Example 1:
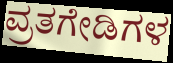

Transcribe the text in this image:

ವ್ರತಗೇಡಿಗಳ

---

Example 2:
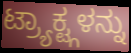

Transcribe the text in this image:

ಟ್ರ್ಯಾಕ್ಟ್ಗಳನ್ನು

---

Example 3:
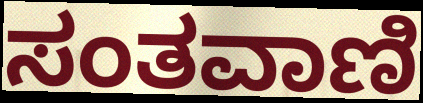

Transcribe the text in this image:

ಸಂತವಾಣಿ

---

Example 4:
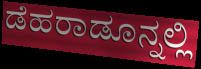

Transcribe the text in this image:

ಡೆಹರಾಡೂನ್ನಲ್ಲಿ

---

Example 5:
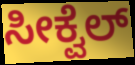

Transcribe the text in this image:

ಸೀಕ್ವೆಲ್